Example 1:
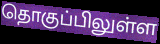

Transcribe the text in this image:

தொகுப்பிலுள்ள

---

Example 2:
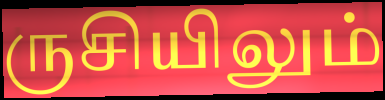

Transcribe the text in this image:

ருசியிலும்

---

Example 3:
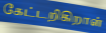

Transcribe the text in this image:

கேட்டறிகிறாள்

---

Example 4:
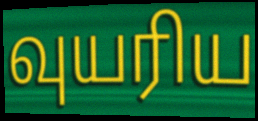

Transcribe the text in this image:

வுயரிய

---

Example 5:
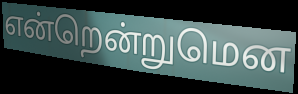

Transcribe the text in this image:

என்றென்றுமென